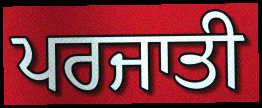
ਪਰਜਾਤੀ